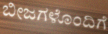
ಬೀಜಗಳೊಂದಿಗೆ